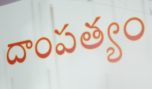
దాంపత్యం